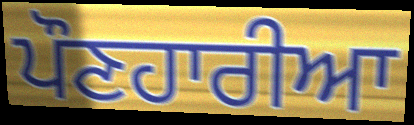
ਪੌਣਹਾਰੀਆ